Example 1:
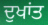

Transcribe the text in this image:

ਦੁਖਾਂਤ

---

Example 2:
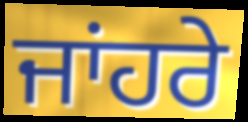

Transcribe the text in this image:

ਜਾਂਹਰੇ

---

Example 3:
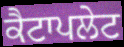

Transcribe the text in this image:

ਕੈਟਾਪਲੇਟ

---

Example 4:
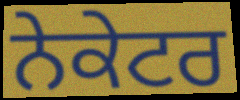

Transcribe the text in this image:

ਨੇਕੇਟਰ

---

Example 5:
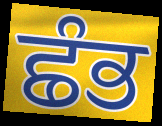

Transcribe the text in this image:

ਛੰਭ